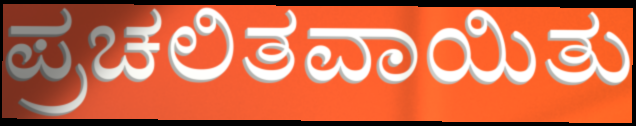
ಪ್ರಚಲಿತವಾಯಿತು